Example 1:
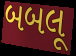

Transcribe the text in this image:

બબલૂ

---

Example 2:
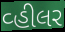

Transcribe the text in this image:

વ્હીલર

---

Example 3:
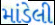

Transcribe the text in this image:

માંડેલી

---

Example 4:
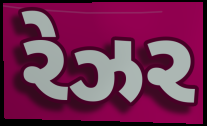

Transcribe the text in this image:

રેઝર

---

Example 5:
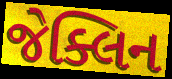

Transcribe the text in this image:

જેક્લિન